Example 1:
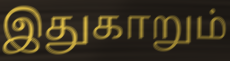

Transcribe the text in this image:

இதுகாறும்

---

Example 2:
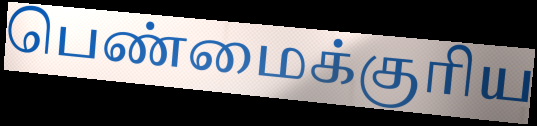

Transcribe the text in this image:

பெண்மைக்குரிய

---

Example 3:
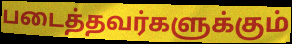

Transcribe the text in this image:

படைத்தவர்களுக்கும்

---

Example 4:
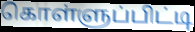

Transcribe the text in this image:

கொள்ளுப்பிட்டி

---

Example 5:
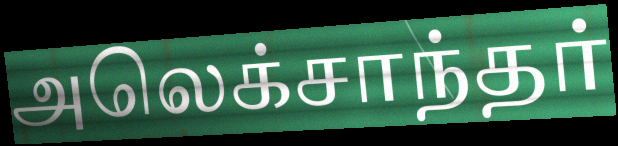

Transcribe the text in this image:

அலெக்சாந்தர்